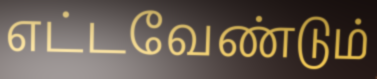
எட்டவேண்டும்